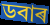
ডবাৰ